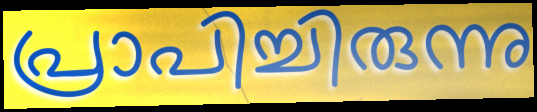
പ്രാപിച്ചിരുന്നു